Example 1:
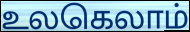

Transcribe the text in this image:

உலகெலாம்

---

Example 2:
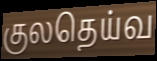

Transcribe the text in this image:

குலதெய்வ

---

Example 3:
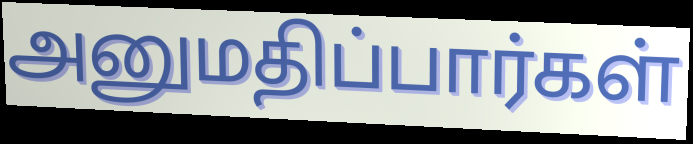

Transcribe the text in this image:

அனுமதிப்பார்கள்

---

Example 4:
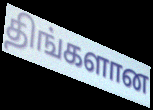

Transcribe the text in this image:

திங்களான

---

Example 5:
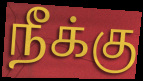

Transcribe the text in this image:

நீக்கு